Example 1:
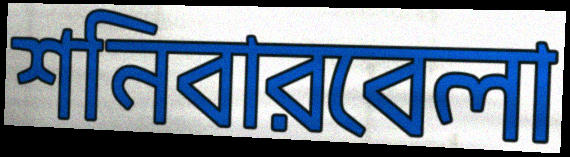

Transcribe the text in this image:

শনিবারবেলা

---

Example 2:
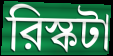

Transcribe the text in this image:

রিস্কটা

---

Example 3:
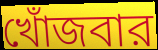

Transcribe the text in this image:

খোঁজবার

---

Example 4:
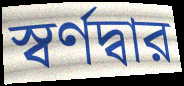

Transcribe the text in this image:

স্বর্ণদ্বার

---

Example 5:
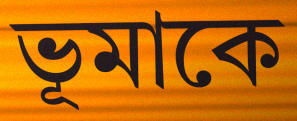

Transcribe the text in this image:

ভূমাকে